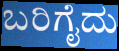
ಬರಿಗೈದು